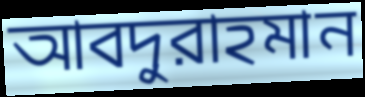
আবদুরাহমান